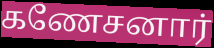
கணேசனார்